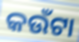
କଉଁଟା